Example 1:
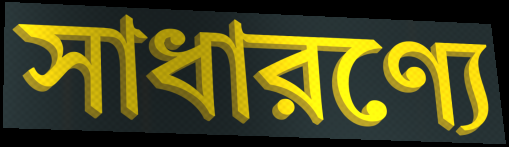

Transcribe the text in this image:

সাধারণ্যে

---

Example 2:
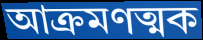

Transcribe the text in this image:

আক্রমণত্মক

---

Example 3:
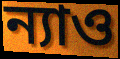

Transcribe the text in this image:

ন্যাও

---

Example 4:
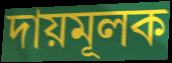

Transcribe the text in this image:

দায়মূলক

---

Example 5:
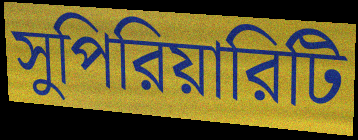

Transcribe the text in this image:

সুপিরিয়ারিটি